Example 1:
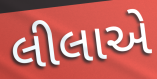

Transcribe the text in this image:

લીલાએ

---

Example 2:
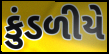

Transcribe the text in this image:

કુંડળીયે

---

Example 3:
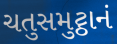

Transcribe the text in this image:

ચતુસમુટ્ઠાનં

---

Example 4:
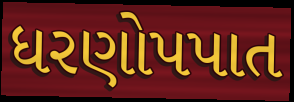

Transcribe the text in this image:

ધરણોપપાત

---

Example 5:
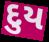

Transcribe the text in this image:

દુય